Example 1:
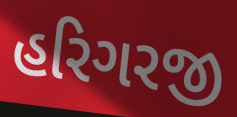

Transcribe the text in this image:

હરિગરજી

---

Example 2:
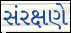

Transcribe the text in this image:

સંરક્ષણે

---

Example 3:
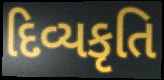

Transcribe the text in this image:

દિવ્યકૃતિ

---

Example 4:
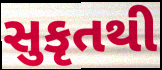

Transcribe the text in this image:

સુકૃતથી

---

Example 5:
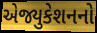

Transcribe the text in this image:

એજ્યુકેશનનો